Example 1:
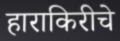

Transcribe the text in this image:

हाराकिरीचे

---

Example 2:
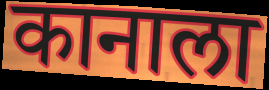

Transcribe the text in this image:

कानाला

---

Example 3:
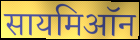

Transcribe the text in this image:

सायमिऑन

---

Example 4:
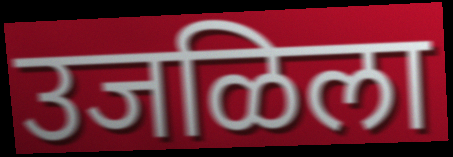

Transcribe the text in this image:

उजळिला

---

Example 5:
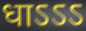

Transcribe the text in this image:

धाऽऽऽ